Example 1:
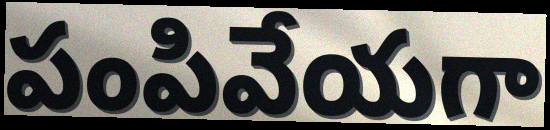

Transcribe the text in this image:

పంపివేయగా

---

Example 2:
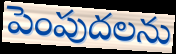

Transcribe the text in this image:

పెంపుదలను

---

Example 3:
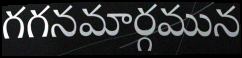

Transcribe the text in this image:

గగనమార్గమున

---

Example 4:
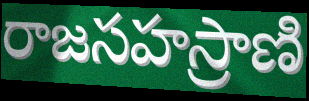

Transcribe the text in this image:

రాజసహస్రాణి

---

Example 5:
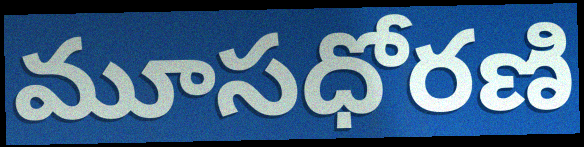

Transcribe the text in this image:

మూసధోరణి